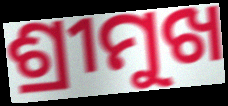
ଶ୍ରୀମୁଖ